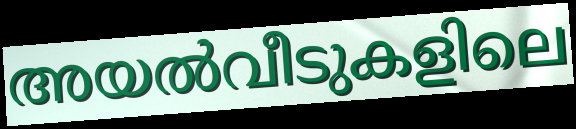
അയൽവീടുകളിലെ